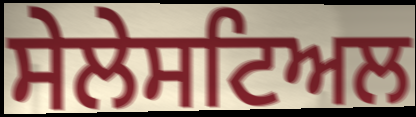
ਸੇਲੇਸਟਿਅਲ